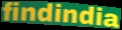
findindia